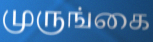
முருங்கை